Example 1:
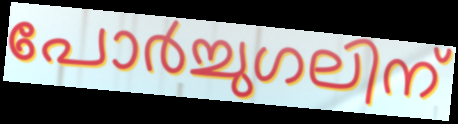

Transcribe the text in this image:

പോർച്ചുഗലിന്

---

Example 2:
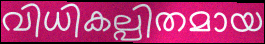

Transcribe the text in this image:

വിധികല്പിതമായ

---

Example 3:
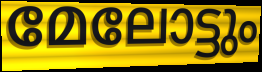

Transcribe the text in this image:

മേലോട്ടും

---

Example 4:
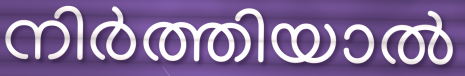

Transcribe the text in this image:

നിർത്തിയാൽ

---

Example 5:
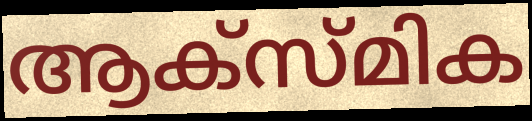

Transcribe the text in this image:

ആക്സ്മിക